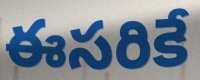
ఈసరికే